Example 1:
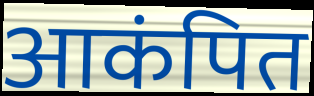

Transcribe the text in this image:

आकंपित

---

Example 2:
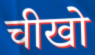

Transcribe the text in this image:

चीखो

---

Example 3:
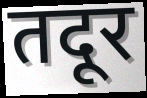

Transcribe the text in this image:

तदूर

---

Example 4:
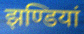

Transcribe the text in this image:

झण्डियां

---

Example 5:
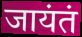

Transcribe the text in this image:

जायंतं